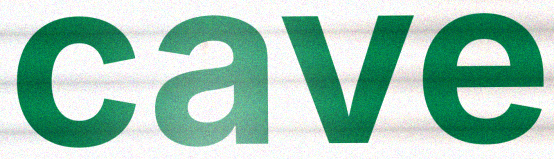
cave